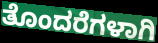
ತೊಂದರೆಗಳಾಗಿ